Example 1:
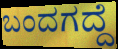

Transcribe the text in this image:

ಬಂದಗದ್ದೆ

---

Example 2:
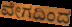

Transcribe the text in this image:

ವೇಗದಿಂದ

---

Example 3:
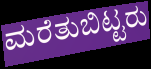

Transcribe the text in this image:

ಮರೆತುಬಿಟ್ಟರು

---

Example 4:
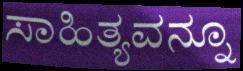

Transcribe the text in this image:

ಸಾಹಿತ್ಯವನ್ನೂ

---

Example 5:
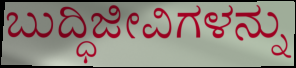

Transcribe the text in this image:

ಬುದ್ಧಿಜೀವಿಗಳನ್ನು